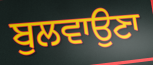
ਬੁਲਵਾਉਣਾ